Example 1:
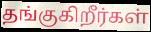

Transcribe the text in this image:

தங்குகிறீர்கள்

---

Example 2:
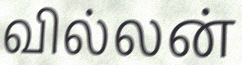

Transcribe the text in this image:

வில்லன்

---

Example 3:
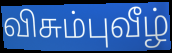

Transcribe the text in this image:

விசும்புவீழ்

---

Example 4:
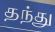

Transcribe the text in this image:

தந்து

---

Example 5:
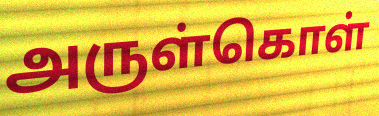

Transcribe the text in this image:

அருள்கொள்